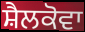
ਸ਼ੈਲਕੋਵਾ